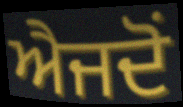
ਐਜਦੋਂ